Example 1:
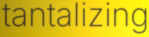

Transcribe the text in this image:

tantalizing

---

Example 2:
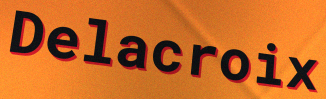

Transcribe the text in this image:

Delacroix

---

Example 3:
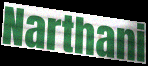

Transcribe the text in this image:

Narthani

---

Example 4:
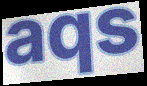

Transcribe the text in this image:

aqs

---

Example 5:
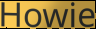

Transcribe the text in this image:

Howie